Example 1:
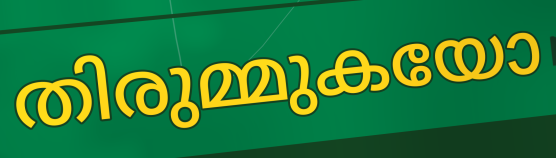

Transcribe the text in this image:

തിരുമ്മുകയോ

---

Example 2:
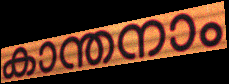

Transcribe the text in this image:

കാന്തനാം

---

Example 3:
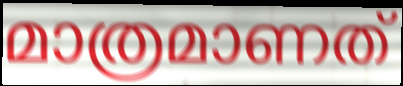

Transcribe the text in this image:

മാത്രമാണത്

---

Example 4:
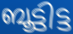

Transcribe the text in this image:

ബൂട്ടിട്ട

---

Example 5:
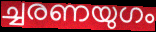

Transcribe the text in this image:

ച്ചരണയുഗം